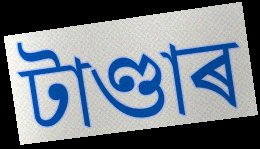
টাণ্ডাৰ